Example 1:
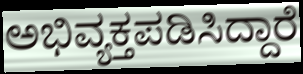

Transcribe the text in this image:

ಅಭಿವ್ಯಕ್ತಪಡಿಸಿದ್ದಾರೆ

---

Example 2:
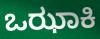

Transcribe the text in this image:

ಒಝಾಕಿ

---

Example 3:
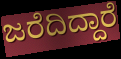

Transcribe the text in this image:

ಜರೆದಿದ್ದಾರೆ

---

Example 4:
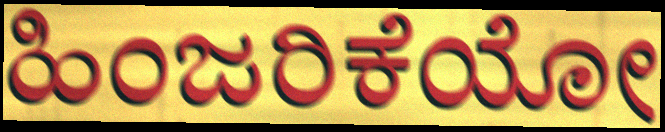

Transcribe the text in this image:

ಹಿಂಜರಿಕೆಯೋ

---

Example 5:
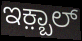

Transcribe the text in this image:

ಇಕ಼್ಬಾಲ್